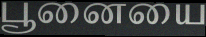
பூனையை